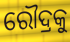
ରୌଦ୍ରକୁ